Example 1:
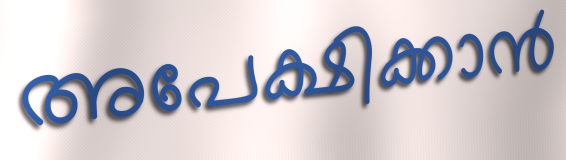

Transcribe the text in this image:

അപേക്ഷിക്കാൻ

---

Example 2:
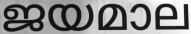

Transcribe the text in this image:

ജയമാല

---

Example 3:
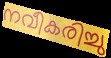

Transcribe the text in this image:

നവീകരിച്ചു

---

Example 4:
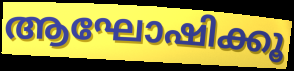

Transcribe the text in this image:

ആഘോഷിക്കൂ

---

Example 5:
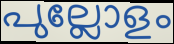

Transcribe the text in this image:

പുല്ലോളം